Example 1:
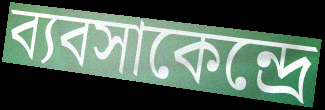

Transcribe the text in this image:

ব্যবসাকেন্দ্রে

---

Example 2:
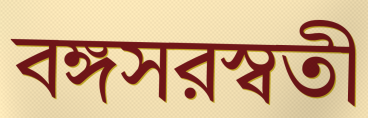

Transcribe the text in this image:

বঙ্গসরস্বতী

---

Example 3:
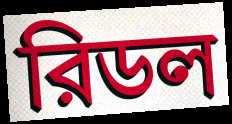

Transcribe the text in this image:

রিডল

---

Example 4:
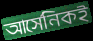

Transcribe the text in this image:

আর্সেনিকই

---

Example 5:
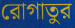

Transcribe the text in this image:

রোগাতুর